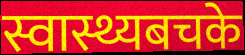
स्वास्थ्यबचके